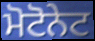
ਮੋਟੋਨੇਟ